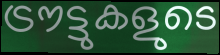
ട്രൗട്ടുകളുടെ